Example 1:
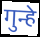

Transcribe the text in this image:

गुन्हे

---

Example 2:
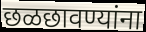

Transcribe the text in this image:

छळछावण्यांना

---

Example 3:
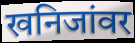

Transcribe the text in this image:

खनिजांवर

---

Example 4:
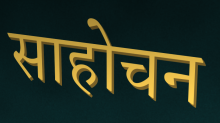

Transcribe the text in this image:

साहोचन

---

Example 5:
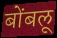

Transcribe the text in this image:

बोंबलू